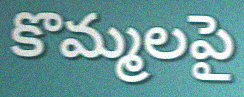
కొమ్మలపై